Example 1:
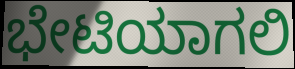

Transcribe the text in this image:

ಭೇಟಿಯಾಗಲಿ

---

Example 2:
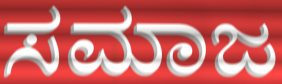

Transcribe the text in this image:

ಸಮಾಜ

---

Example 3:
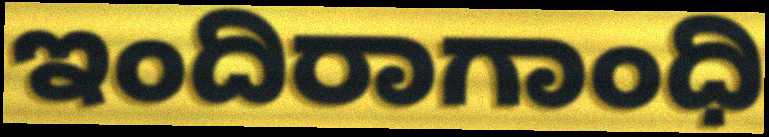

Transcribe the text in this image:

ಇಂದಿರಾಗಾಂಧಿ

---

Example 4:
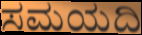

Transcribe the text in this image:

ಸಮಯದಿ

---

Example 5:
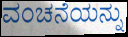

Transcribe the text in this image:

ವಂಚನೆಯನ್ನು